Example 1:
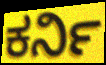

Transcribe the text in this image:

ಕರ್ನಿ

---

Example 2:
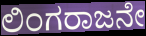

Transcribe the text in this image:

ಲಿಂಗರಾಜನೇ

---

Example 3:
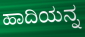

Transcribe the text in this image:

ಹಾದಿಯನ್ನ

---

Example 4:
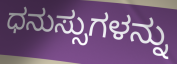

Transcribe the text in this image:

ಧನುಸ್ಸುಗಳನ್ನು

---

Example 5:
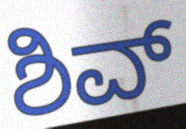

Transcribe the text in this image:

ಶಿವ್